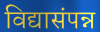
विद्यासंपन्न